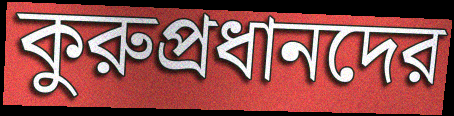
কুরুপ্রধানদের